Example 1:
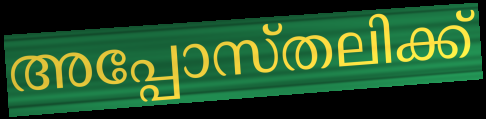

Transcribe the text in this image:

അപ്പോസ്തലിക്ക്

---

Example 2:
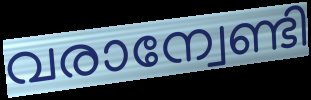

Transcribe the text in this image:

വരാന്വേണ്ടി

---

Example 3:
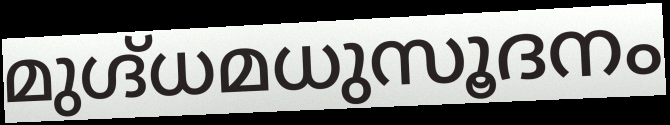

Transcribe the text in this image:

മുഗ്ദ്ധമധുസൂദനം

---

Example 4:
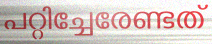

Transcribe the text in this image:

പറ്റിച്ചേരേണ്ടത്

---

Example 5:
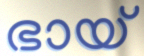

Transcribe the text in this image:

ഭായ്